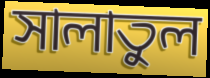
সালাতুল